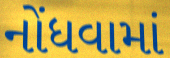
નોંધવામાં